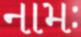
નામઃ